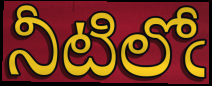
నీటిలోఁ